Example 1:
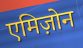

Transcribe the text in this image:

एमिज़ोन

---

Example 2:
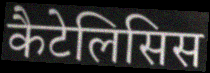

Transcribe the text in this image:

कैटेलिसिस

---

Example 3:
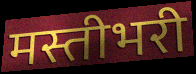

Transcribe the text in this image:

मस्तीभरी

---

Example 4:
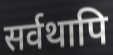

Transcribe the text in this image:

सर्वथापि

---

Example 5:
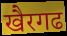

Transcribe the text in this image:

खैरगढ